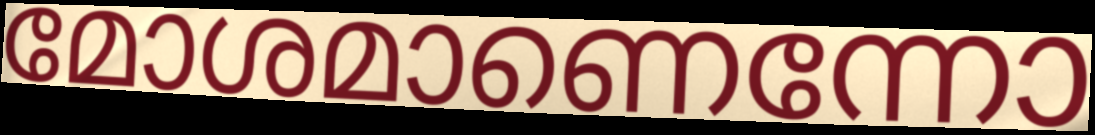
മോശമാണെന്നോ